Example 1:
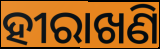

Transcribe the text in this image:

ହୀରାଖଣି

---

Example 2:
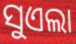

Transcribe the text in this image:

ସୁଏଲା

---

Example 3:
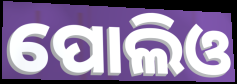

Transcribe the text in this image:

ପୋଲିଓ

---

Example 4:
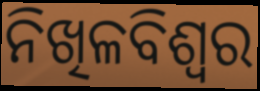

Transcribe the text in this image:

ନିଖିଳବିଶ୍ୱର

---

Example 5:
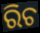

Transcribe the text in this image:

ରିଚ